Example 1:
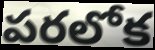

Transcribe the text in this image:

పరలోక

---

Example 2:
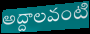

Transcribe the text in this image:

అద్దాలవంటి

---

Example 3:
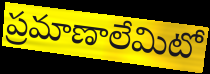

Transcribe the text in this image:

ప్రమాణాలేమిటో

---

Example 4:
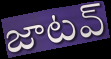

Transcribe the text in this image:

జాటవ్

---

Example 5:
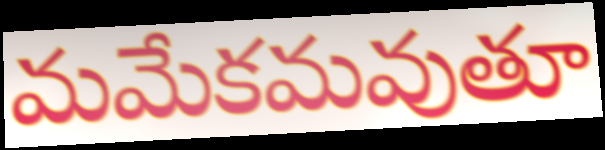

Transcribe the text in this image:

మమేకమవుతూ